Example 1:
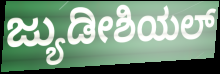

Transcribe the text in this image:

ಜ್ಯುಡೀಶಿಯಲ್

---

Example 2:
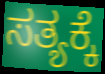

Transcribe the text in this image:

ಸತ್ಯಕ್ಕೆ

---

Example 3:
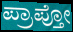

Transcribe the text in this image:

ಪ್ರಾಪ್ತೋ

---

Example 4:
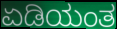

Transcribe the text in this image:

ಏಡಿಯಂತ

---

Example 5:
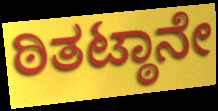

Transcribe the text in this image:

ಠಿತಟ್ಠಾನೇ